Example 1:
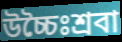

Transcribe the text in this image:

উচ্চৈঃশ্রবা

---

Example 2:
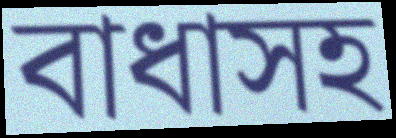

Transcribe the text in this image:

বাধাসহ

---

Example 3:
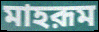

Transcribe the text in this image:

মাহরূম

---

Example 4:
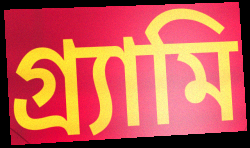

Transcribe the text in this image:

গ্র্যামি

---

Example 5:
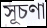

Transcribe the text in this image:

সূচণা